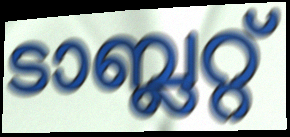
ടാബ്ലറ്റ്